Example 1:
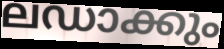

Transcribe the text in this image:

ലഡാക്കും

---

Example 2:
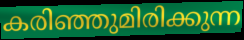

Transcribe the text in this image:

കരിഞ്ഞുമിരിക്കുന്ന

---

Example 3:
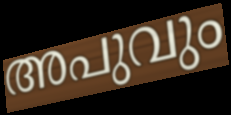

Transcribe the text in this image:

അപുവും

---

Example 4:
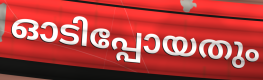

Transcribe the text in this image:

ഓടിപ്പോയതും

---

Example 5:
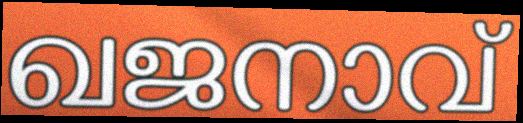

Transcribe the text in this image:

ഖജനാവ്